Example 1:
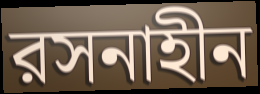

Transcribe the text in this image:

রসনাহীন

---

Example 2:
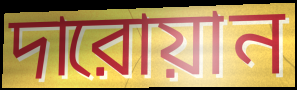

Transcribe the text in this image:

দারোয়ান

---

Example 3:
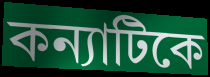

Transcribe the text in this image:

কন্যাটিকে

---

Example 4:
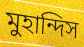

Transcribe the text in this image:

মুহান্দিস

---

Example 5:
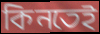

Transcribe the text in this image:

কিনতেই